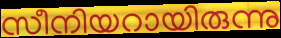
സീനിയറായിരുന്നു